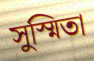
সুস্মিতা